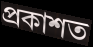
প্ৰকাশত